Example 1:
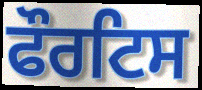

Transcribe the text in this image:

ਫੌਰਟਿਸ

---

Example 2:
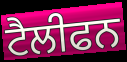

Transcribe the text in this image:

ਟੈਲੀਫਨ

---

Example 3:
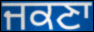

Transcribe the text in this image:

ਜਕਣਾ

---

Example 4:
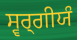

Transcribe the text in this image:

ਸ੍ਵਰ੍ਗੀਯੰ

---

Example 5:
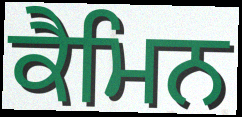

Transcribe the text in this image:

ਕੈਮਿਨ